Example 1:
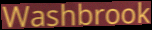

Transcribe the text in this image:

Washbrook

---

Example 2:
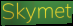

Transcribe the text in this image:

Skymet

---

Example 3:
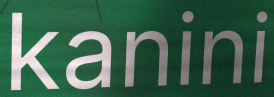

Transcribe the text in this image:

kanini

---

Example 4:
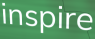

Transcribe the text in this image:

inspire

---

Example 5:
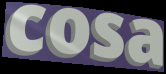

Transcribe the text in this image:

cosa